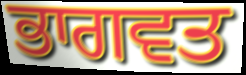
ਭਾਗਵਤ